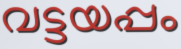
വട്ടയപ്പം